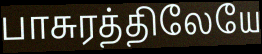
பாசுரத்திலேயே